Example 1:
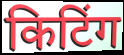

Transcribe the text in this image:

किटिंग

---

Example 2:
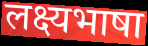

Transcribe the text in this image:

लक्ष्यभाषा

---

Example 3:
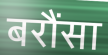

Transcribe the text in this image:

बरौंसा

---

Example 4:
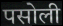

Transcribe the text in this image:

पसोली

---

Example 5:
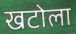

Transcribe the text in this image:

खटोला